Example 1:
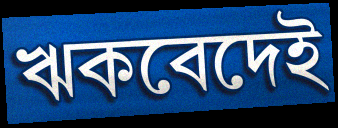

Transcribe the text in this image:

ঋকবেদেই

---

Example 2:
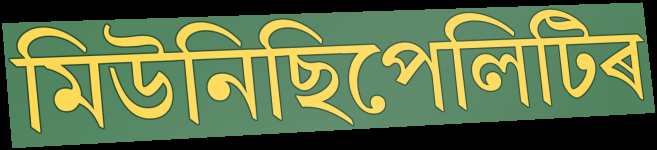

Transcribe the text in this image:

মিউনিছিপেলিটিৰ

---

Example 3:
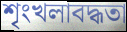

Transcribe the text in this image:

শৃংখলাবদ্ধতা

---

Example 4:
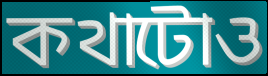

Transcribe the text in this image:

কথাটোও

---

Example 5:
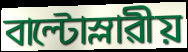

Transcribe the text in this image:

বাল্টোস্লাৱীয়